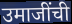
उमाजींची